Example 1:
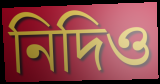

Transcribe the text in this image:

নিদিও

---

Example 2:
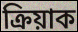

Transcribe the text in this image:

ক্ৰিয়াক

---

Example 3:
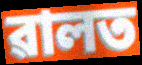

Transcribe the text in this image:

ৱালত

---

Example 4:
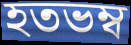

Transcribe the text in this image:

হতভম্ব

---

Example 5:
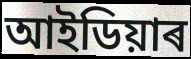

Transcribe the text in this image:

আইডিয়াৰ